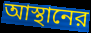
আস্থানের